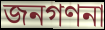
জনগণনা